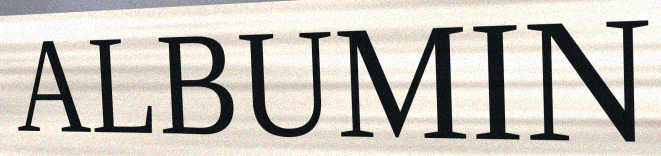
ALBUMIN